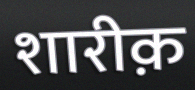
शारीक़